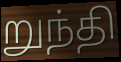
றுந்தி